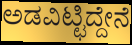
ಅಡವಿಟ್ಟಿದ್ದೇನೆ